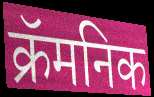
क्रॅमनिक